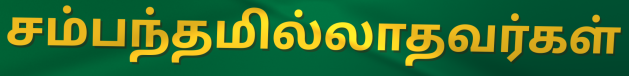
சம்பந்தமில்லாதவர்கள்